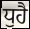
ਧੁਹੈ